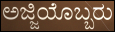
ಅಜ್ಜಿಯೊಬ್ಬರು